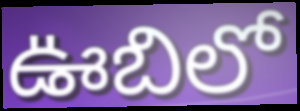
ఊబిలో